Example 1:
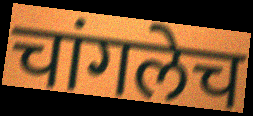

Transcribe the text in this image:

चांगलेच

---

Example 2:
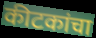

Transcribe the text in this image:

कीटकांचा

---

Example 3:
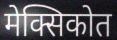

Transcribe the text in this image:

मेक्सिकोत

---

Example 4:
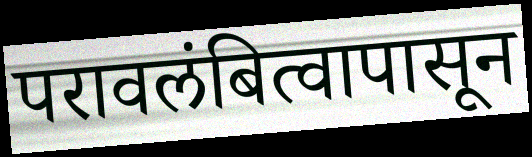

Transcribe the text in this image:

परावलंबित्वापासून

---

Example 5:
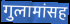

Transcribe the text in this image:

गुलामांसह